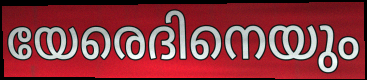
യേരെദിനെയും